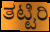
ತಟ್ಟಿರಿ